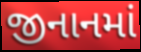
જીનાનમાં